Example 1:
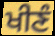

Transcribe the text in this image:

ਖੀਣੰ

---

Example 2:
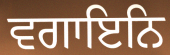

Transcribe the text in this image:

ਵਗਾਇਨਿ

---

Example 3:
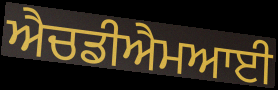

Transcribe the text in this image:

ਐਚਡੀਐਮਆਈ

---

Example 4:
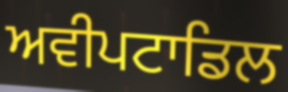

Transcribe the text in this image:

ਅਵੀਪਟਾਡਿਲ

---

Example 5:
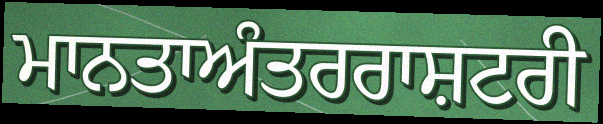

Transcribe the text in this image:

ਮਾਨਤਾਅੰਤਰਰਾਸ਼ਟਰੀ